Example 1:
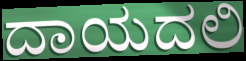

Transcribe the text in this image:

ದಾಯದಲಿ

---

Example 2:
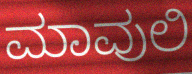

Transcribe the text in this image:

ಮಾವುಲಿ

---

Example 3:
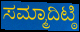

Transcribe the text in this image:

ಸಮ್ಮಾದಿಟ್ಠಿ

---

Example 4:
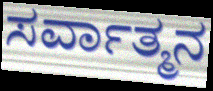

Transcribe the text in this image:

ಸರ್ವಾತ್ಮನ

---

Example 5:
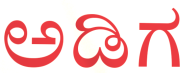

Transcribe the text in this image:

ಅಡಿಗ